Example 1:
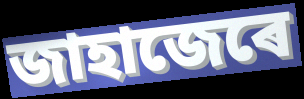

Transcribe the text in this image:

জাহাজেৰে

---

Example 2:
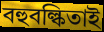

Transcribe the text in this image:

বহুবল্কিতাই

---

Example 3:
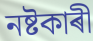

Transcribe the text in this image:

নষ্টকাৰী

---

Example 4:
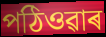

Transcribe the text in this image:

পঠিওৱাৰ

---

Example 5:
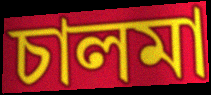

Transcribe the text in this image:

চালমা